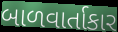
બાળવાર્તાકાર